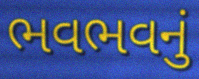
ભવભવનું